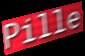
Pille